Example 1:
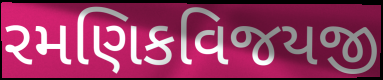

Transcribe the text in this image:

રમણિકવિજયજી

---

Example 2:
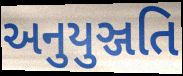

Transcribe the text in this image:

અનુયુઞ્જતિ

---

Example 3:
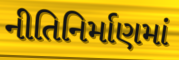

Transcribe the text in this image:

નીતિનિર્માણમાં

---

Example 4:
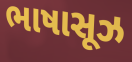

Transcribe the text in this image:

ભાષાસૂઝ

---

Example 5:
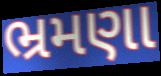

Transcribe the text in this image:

ભ્રમણા